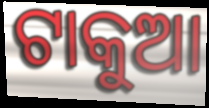
ଟାକୁଆ